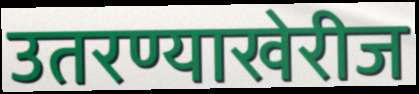
उतरण्याखेरीज